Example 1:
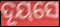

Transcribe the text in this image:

ଦୂୟସେ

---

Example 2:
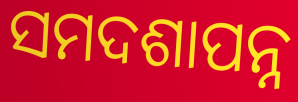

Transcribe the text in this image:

ସମଦଶାପନ୍ନ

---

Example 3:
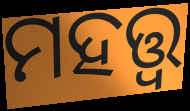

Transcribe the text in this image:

ମହତ୍ତ୍ବ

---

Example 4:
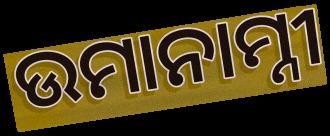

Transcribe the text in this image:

ଉମାନାମ୍ନୀ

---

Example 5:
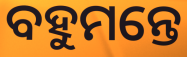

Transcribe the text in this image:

ବହୁମନ୍ତେ